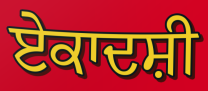
ਏਕਾਦਸ਼ੀ